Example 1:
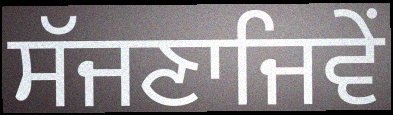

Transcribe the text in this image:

ਸੱਜਣਾਜਿਵੇਂ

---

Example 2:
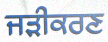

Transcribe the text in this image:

ਜੜੀਕਰਣ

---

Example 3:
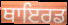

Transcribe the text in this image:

ਥਾਇਰਡ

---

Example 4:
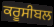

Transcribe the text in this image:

ਕਰੂਸੀਬਲ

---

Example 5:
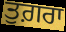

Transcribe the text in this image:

ਤੁਗ਼ਰਾ